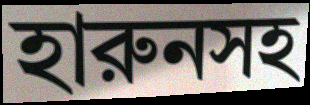
হারুনসহ